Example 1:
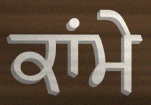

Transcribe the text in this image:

ਕਾਂਮੇ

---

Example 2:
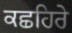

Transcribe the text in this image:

ਕਛਹਿਰੇ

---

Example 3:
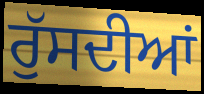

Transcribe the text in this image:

ਰੁੱਸਦੀਆਂ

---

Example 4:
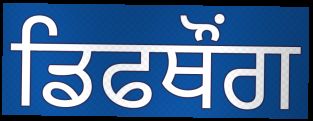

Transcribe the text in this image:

ਡਿਫਥੌਂਗ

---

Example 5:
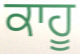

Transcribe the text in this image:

ਕਾਹੂ